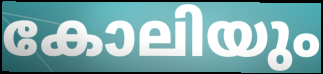
കോലിയും